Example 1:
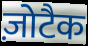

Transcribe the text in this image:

ज़ोटैक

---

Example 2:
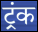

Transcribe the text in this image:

ट्रंक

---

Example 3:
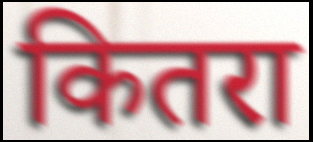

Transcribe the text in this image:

कितरा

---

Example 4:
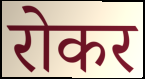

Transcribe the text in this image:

रोकर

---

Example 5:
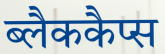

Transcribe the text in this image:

ब्लैककैप्स